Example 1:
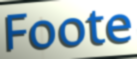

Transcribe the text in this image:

Foote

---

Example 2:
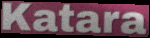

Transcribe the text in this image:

Katara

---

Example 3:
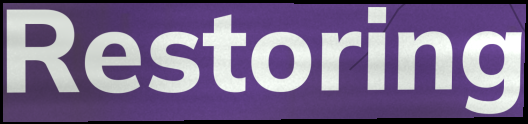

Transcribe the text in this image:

Restoring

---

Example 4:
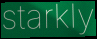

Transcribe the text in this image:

starkly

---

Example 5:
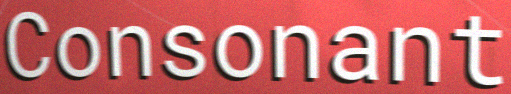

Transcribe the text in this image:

Consonant